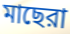
মাছেরা